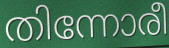
തിന്നോരീ